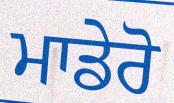
ਮਾਡੇਰੋ